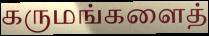
கருமங்களைத்